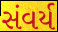
સંવર્ય